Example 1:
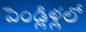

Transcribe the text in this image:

పెండ్లిళ్లలో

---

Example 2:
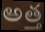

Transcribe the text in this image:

అత్త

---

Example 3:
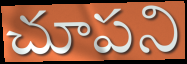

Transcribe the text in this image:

చూపని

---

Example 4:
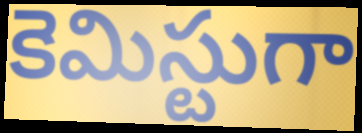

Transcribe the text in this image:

కెమిస్టుగా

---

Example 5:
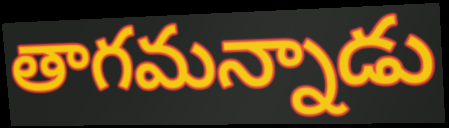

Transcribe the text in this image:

తాగమన్నాడు